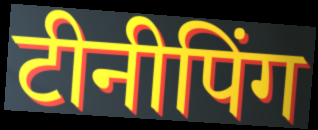
टीनीपिंग